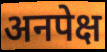
अनपेक्ष